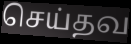
செய்தவ